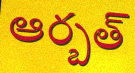
ఆర్బత్